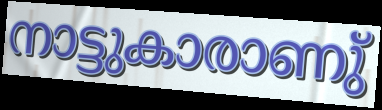
നാട്ടുകാരാണു്